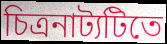
চিত্রনাট্যটিতে